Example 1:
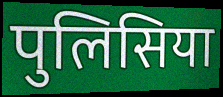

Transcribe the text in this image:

पुलिसिया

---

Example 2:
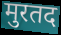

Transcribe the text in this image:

मुरतद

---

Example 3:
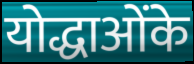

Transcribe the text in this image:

योद्धाओंके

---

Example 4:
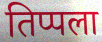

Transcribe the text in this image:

तिप्पला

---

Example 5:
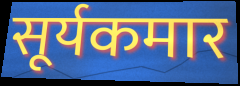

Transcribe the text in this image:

सूर्यकमार